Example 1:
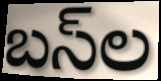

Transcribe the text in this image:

బస్‌ల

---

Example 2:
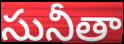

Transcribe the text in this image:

సునీతా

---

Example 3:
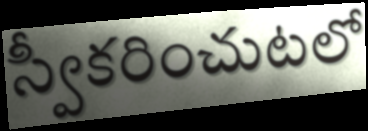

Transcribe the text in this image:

స్వీకరించుటలో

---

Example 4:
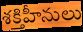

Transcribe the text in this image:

శక్తిహీనులు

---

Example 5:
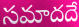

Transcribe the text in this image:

సమాదదే